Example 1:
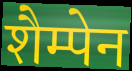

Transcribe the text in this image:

शैम्पेन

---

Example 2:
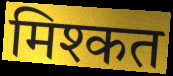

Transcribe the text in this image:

मिश्कत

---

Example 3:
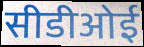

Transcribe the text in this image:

सीडीओई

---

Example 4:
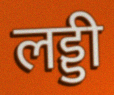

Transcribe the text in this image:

लड्डी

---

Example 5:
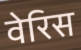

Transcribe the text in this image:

वेरिस